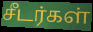
சீடர்கள்